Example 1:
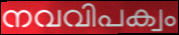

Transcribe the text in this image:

നവവിപക്വം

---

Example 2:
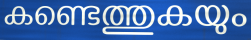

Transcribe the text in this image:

കണ്ടെത്തുകയും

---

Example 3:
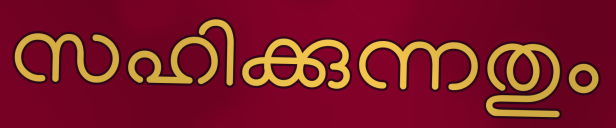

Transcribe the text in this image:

സഹിക്കുന്നതും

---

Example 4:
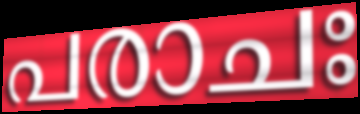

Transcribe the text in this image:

പരാചഃ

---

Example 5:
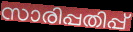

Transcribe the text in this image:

സാരിപ്പതിപ്പ്